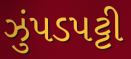
ઝુંપડપટ્ટી